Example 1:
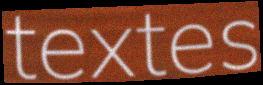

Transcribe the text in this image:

textes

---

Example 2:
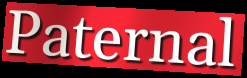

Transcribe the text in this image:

Paternal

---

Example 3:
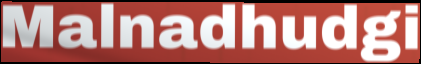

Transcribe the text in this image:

Malnadhudgi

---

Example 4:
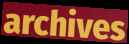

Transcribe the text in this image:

archives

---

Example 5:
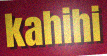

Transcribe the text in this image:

kahihi